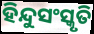
ହିନ୍ଦୁସଂସ୍କୃତି